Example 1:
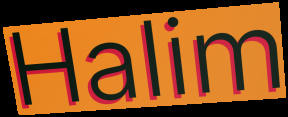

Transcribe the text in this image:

Halim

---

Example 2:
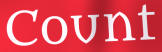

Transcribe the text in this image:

Count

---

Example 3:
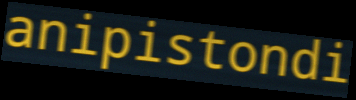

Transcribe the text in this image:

anipistondi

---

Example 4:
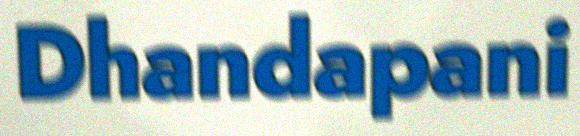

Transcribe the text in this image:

Dhandapani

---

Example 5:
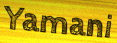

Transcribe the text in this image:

Yamani